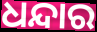
ଧନ୍ଦାର